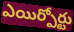
ఎయిర్పోర్టు